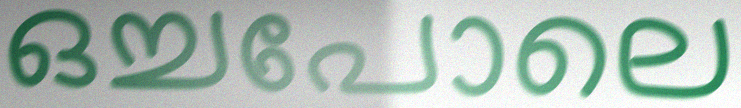
ഒച്ചപോലെ